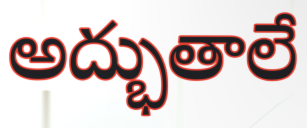
అద్భుతాలే